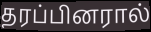
தரப்பினரால்